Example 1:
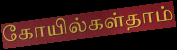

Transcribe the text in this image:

கோயில்கள்தாம்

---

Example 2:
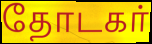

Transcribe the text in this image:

தோடகர்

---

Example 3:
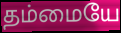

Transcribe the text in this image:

தம்மையே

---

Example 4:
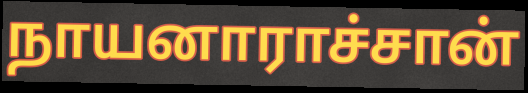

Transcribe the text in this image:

நாயனாராச்சான்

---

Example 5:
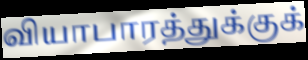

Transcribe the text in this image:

வியாபாரத்துக்குக்